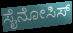
ಸೈನೋಸಿಸ್